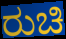
ರುಚಿ